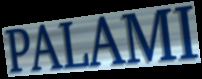
PALAMI